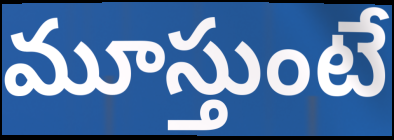
మూస్తుంటే